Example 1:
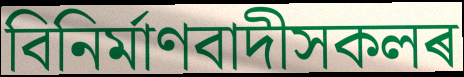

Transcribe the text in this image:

বিনিৰ্মাণবাদীসকলৰ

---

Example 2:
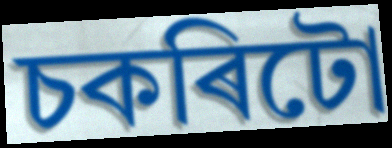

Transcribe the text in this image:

চকৰিটো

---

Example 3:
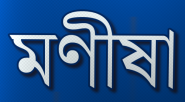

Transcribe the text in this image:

মণীষা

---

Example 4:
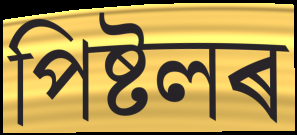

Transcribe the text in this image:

পিষ্টলৰ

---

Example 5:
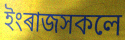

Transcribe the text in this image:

ইংৰাজসকলে